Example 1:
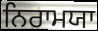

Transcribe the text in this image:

ਨਿਰਾਮਯਾ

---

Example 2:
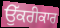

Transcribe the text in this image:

ਉੱਕਰੀਕਾਰ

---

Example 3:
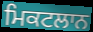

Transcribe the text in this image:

ਮਿਕਟਲਾਨ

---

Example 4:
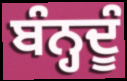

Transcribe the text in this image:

ਬੰਨ੍ਹਦੂੰ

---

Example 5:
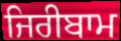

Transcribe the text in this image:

ਜਿਰੀਬਾਮ